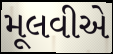
મૂલવીએ